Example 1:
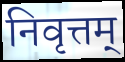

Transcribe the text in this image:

निवृत्तम्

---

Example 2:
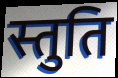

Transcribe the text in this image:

स्तुति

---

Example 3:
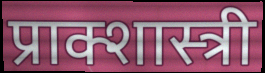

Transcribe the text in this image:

प्राक्शास्त्री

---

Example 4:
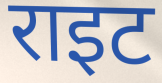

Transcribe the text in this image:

राइट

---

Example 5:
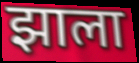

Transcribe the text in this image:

झाला